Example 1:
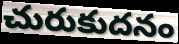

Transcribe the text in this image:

చురుకుదనం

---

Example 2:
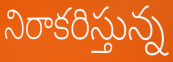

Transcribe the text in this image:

నిరాకరిస్తున్న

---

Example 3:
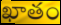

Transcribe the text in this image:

ఖాతం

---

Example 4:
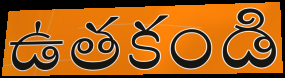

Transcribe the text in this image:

ఉతకండి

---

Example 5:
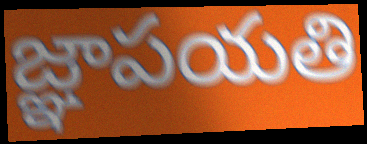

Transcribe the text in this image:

జ్ఞాపయతి